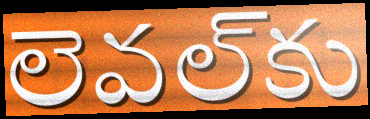
లెవల్‌కు